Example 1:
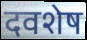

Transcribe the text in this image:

दवशेष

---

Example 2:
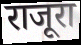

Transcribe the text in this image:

राजूरा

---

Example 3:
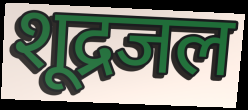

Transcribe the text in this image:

शूद्रजल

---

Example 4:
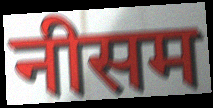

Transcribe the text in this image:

नीसम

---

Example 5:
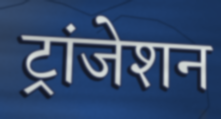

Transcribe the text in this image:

ट्रांजेशन